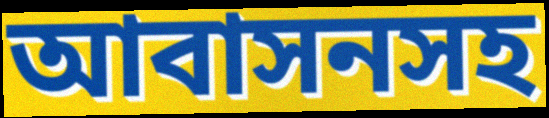
আবাসনসহ